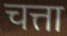
चत्ता